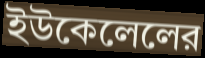
ইউকেলেলের